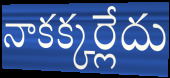
నాకక్కర్లేదు